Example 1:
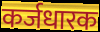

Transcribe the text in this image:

कर्जधारक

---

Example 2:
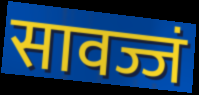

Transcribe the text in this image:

सावज्जं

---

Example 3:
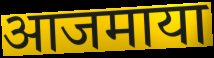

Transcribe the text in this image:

आजमाया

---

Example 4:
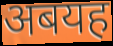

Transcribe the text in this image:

अबयह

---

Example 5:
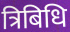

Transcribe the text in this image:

त्रिबिधि